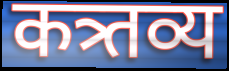
कत्र्तव्य